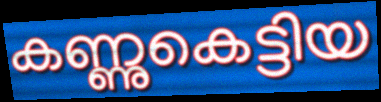
കണ്ണുകെട്ടിയ